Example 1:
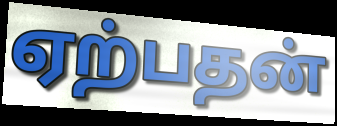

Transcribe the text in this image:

ஏற்பதன்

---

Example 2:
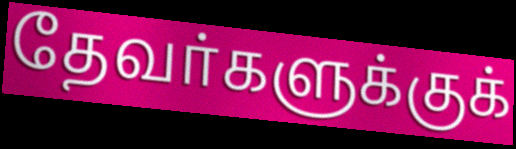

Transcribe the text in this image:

தேவர்களுக்குக்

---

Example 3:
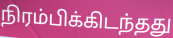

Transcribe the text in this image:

நிரம்பிக்கிடந்தது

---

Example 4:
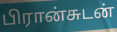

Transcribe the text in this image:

பிரான்சுடன்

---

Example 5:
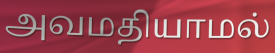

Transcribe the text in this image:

அவமதியாமல்